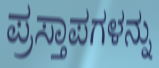
ಪ್ರಸ್ತಾಪಗಳನ್ನು